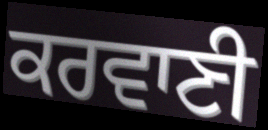
ਕਰਵਾਣੀ